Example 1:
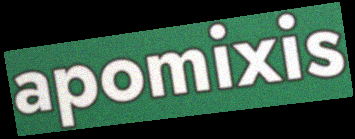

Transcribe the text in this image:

apomixis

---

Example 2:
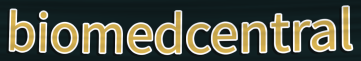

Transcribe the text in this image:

biomedcentral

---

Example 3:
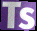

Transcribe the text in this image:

Ts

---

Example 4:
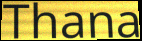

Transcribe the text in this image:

Thana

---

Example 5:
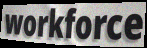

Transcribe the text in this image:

workforce